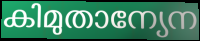
കിമുതാന്യേന